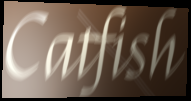
Catfish